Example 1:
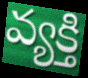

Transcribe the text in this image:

వ్యక్తి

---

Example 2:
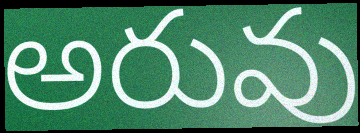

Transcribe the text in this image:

అరువు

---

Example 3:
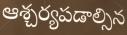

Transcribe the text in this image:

ఆశ్చర్యపడాల్సిన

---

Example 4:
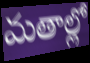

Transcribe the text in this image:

మతాల్లో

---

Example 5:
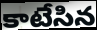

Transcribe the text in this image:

కాటేసిన